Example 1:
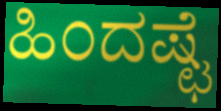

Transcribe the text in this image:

ಹಿಂದಷ್ಟೆ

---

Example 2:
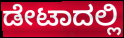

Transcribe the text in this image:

ಡೇಟಾದಲ್ಲಿ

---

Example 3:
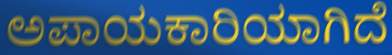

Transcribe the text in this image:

ಅಪಾಯಕಾರಿಯಾಗಿದೆ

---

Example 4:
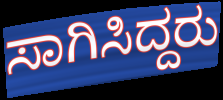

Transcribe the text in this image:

ಸಾಗಿಸಿದ್ದರು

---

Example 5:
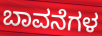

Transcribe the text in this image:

ಬಾವನೆಗಳ